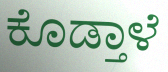
ಕೊಡ್ತಾಳೆ